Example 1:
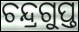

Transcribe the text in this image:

ଚନ୍ଦ୍ରଗୁପ୍ତ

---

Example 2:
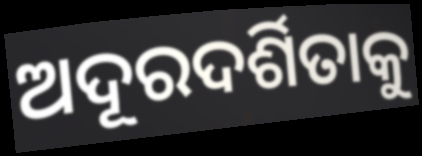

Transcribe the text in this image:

ଅଦୂରଦର୍ଶିତାକୁ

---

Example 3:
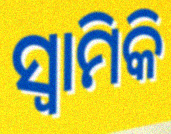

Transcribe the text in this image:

ସ୍ୱାମିକି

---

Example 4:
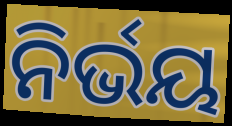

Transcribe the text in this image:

ନିର୍ଭୟ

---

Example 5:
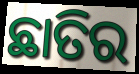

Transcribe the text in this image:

ଛାତିର